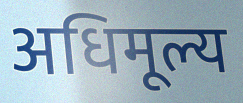
अधिमूल्य